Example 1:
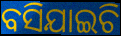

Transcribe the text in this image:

ବସିଯାଇଚି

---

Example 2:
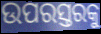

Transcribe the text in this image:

ଉପରସ୍ତରକୁ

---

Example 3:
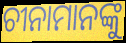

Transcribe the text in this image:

ଚୀନାମାନଙ୍କୁ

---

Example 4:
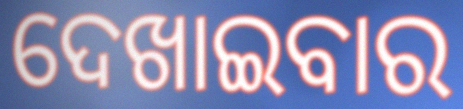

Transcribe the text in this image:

ଦେଖାଇବାର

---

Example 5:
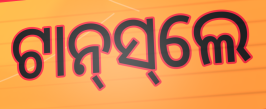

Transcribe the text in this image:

ଟାନ୍‌ସ୍‌ଲେ